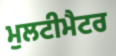
ਮੁਲਟੀਮੈਟਰ